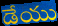
డేయు